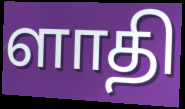
ளாதி